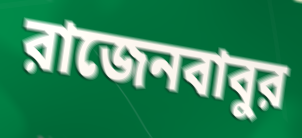
রাজেনবাবুর